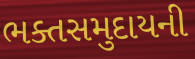
ભક્તસમુદાયની